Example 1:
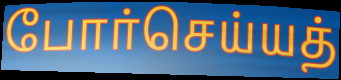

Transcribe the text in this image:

போர்செய்யத்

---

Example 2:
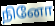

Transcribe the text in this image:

நினோ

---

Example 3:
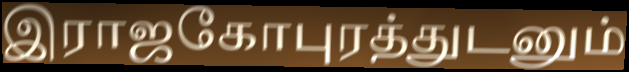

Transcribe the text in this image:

இராஜகோபுரத்துடனும்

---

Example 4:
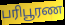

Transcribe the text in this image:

பரிபூரண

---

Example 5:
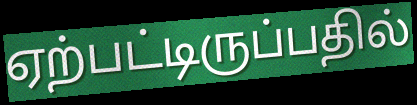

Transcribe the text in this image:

ஏற்பட்டிருப்பதில்